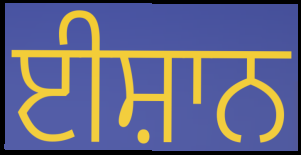
ਈਸ਼ਾਨ